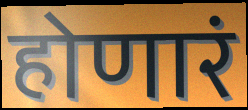
होणारं